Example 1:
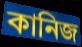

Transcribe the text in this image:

কানিজ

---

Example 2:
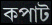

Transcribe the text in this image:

কপাট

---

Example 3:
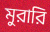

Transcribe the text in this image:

মুরারি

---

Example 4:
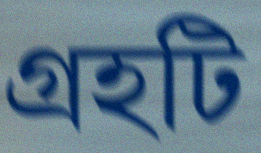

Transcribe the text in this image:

গ্রহটি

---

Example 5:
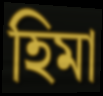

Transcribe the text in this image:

হিমা